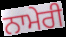
ਨਾਮੇਰੀ